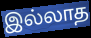
இல்லாத